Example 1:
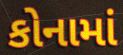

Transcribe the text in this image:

કોનામાં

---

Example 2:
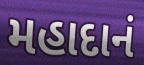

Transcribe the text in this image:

મહાદાનં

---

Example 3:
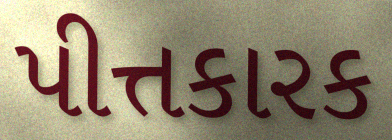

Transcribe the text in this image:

પીત્તકારક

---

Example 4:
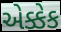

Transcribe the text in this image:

એક્કેક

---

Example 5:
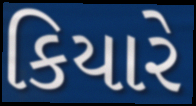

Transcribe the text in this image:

કિયારે